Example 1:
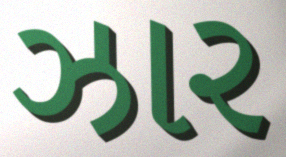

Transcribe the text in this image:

ઝાર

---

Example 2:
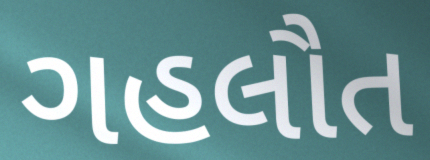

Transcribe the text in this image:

ગહલૌત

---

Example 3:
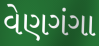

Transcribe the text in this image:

વેણગંગા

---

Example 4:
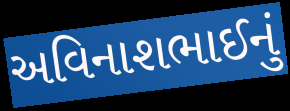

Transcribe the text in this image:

અવિનાશભાઈનું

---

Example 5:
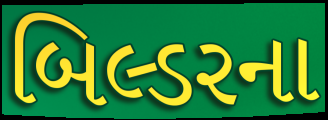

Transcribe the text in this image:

બિલ્ડરના